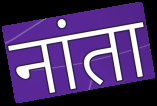
नांता